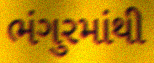
ભંગુરમાંથી